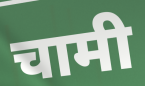
चामी